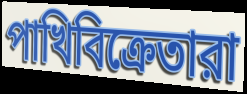
পাখিবিক্রেতারা